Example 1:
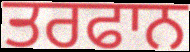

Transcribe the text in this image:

ਤਰਫਾਨ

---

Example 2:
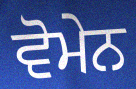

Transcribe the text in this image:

ਵੋਮੇਨ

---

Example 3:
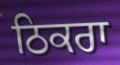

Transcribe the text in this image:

ਠਿਕਰਾ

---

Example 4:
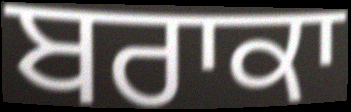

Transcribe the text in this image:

ਬਰਾਕਾ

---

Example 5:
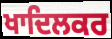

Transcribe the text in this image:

ਖਾਦਿਲਕਰ